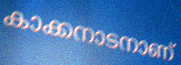
കാക്കനാടനാണ്